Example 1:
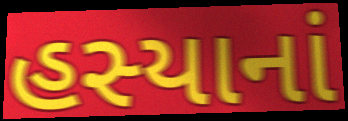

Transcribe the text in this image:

હસ્યાનાં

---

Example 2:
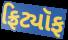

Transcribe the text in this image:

ફ્રિટ્યૉફ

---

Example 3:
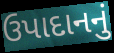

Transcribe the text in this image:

ઉપાદાનનું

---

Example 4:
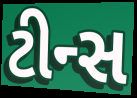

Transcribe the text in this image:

ટીન્સ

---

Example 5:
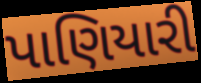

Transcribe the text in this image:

પાણિયારી